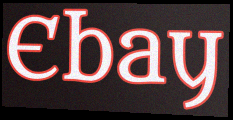
Ebay